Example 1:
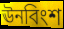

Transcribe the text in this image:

ঊনবিংশ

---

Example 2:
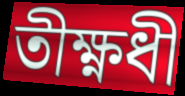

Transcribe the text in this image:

তীক্ষ্ণধী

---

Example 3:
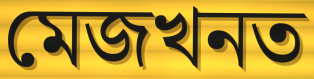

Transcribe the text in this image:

মেজখনত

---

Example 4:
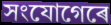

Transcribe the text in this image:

সংযোগেৰে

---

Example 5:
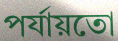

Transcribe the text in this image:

পৰ্যায়তো